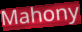
Mahony